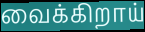
வைக்கிறாய்